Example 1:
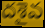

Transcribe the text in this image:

దశైవ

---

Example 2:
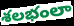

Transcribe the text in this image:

శలభంలా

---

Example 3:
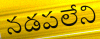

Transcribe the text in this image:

నడపలేని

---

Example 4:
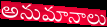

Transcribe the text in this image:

అనుమానాలు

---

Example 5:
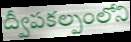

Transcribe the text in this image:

ద్వీపకల్పంలోని